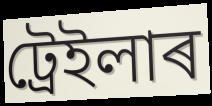
ট্ৰেইলাৰ